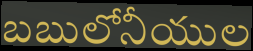
బబులోనీయుల